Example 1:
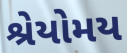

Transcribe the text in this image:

શ્રેયોમય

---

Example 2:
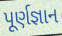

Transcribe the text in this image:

પૂર્ણજ્ઞાન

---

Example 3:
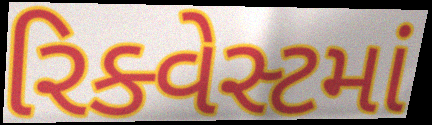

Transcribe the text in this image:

રિક્વેસ્ટમાં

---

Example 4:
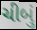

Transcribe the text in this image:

ચીબું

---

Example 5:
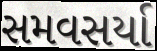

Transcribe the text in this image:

સમવસર્યા